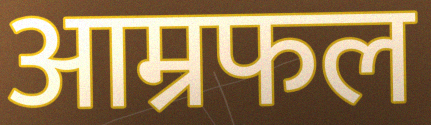
आम्रफल